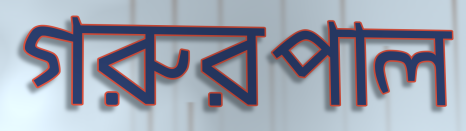
গরুরপাল